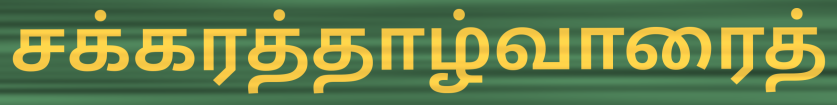
சக்கரத்தாழ்வாரைத்